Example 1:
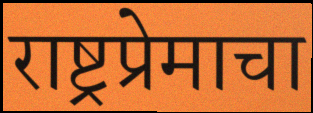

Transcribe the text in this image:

राष्ट्रप्रेमाचा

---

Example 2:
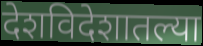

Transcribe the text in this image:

देशविदेशातल्या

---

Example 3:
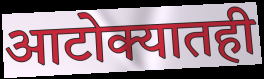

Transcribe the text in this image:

आटोक्यातही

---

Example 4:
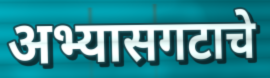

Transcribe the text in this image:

अभ्यासगटाचे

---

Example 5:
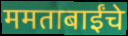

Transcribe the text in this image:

ममताबाईंचे